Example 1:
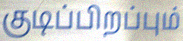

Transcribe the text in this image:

குடிப்பிறப்பும்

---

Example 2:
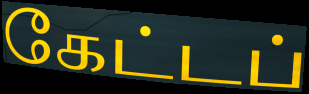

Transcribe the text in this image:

கேட்டப்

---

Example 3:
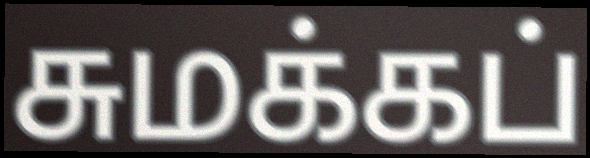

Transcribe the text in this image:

சுமக்கப்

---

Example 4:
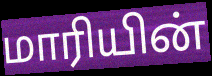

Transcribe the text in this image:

மாரியின்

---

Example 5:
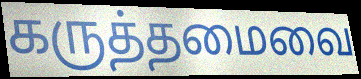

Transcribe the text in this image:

கருத்தமைவை